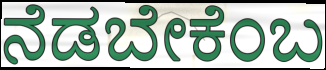
ನೆಡಬೇಕೆಂಬ